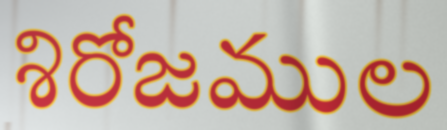
శిరోజముల